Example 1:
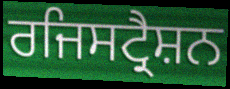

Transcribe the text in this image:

ਰਜਿਸਟ੍ਰੈਸ਼ਨ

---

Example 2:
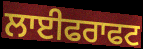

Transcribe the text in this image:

ਲਾਈਫਰਾਫਟ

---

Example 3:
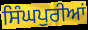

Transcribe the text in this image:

ਸਿੰਘਪੁਰੀਆਂ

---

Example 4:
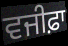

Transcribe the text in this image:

ਵਜੀਫ਼ਾ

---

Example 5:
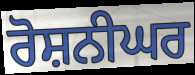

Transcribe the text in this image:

ਰੋਸ਼ਨੀਘਰ